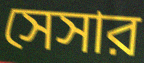
সেসার